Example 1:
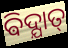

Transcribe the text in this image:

ଵିଦ୍ଯାତ୍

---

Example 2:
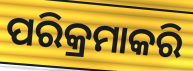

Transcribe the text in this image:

ପରିକ୍ରମାକରି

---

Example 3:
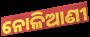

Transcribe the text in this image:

ନୋଳିଆଣୀ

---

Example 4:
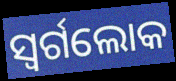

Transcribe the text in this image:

ସ୍ୱର୍ଗଲୋକ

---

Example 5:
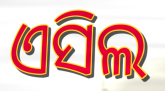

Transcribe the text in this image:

ଏସିଲ